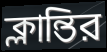
ক্লান্তির